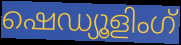
ഷെഡ്യൂളിംഗ്